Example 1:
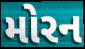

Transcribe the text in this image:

મોરન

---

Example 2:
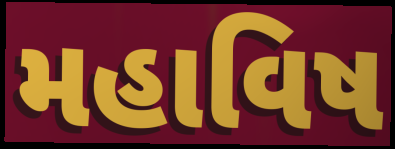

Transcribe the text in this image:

મહાવિષ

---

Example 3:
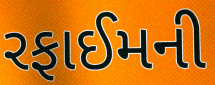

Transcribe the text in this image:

રફાઈમની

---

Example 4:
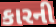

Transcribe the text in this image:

કારની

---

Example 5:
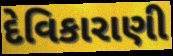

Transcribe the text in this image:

દેવિકારાણી